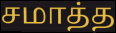
சமாத்த